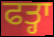
ਫਤ੍ਹਾ